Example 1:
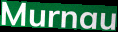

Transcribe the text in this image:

Murnau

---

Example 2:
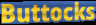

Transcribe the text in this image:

Buttocks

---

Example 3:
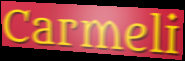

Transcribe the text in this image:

Carmeli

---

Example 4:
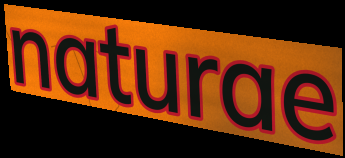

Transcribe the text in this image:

naturae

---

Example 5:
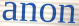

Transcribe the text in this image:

anon